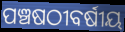
ପଞ୍ଚଷଠୀବର୍ଷୀୟ